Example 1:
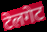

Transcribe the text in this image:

टेलगेट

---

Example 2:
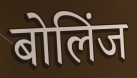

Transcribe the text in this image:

बोलिंज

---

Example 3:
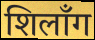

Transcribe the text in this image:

शिलाँग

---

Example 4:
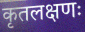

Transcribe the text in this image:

कृतलक्षणः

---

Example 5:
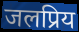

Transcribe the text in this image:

जलप्रिय